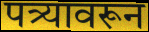
पत्र्यावरून